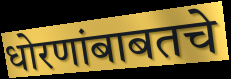
धोरणांबाबतचे